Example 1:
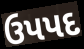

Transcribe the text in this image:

ઉપપદ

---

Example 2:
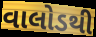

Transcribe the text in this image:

વાલોડથી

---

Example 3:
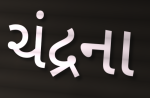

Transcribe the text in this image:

ચંદ્રના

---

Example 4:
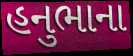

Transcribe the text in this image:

હનુભાના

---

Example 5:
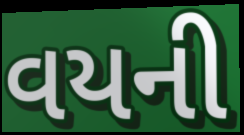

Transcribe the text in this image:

વયની